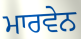
ਮਾਰਵੇਨ